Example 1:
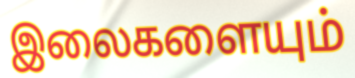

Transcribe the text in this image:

இலைகளையும்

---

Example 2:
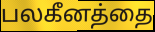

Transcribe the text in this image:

பலகீனத்தை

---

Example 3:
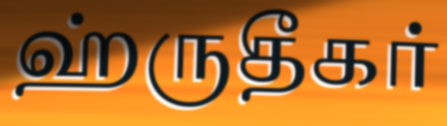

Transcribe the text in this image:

ஹ்ருதீகர்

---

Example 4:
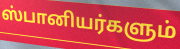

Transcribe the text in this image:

ஸ்பானியர்களும்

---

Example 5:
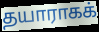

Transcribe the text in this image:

தயாராகக்